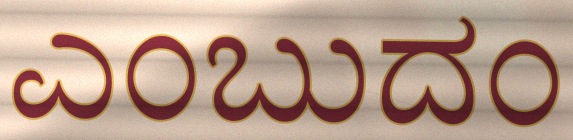
ಎಂಬುದಂ